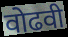
वोढवी